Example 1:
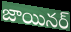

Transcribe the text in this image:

జాయినర్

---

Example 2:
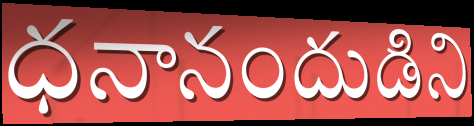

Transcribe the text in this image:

ధనానందుడిని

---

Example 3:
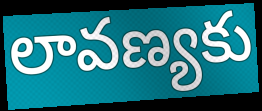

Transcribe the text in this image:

లావణ్యకు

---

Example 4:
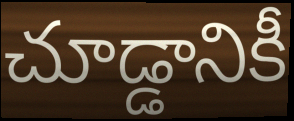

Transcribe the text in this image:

చూడ్డానికీ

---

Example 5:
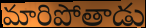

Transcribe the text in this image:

మారిపోతాడు